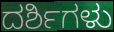
ದರ್ಶಿಗಳು